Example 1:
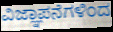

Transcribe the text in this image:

ವಿಜ್ಞಾಪನೆಗಳಿಂದ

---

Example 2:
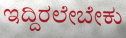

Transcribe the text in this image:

ಇದ್ದಿರಲೇಬೇಕು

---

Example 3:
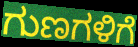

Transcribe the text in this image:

ಗುಣಗಳಿಗೆ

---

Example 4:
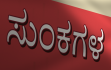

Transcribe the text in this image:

ಸುಂಕಗಳ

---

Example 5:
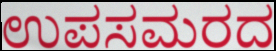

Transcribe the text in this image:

ಉಪಸಮರದ